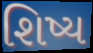
શિષ્ય